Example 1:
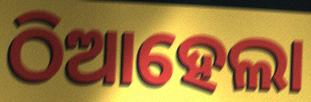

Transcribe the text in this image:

ଠିଆହେଲା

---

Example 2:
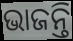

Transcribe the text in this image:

ଭାଜନ୍ତି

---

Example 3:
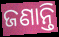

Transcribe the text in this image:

ଜଣାନ୍ତି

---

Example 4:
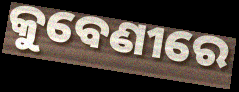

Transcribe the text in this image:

କୁବେଣୀରେ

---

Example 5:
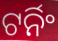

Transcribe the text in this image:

ଟର୍ନିଂ